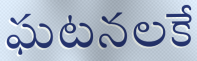
ఘటనలకే